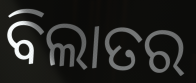
ବିଲାତର